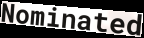
Nominated